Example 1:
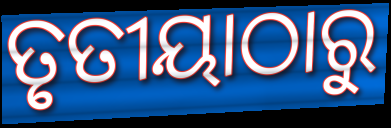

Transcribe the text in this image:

ତୃତୀୟାଠାରୁ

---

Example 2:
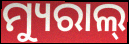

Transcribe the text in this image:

ମ୍ୟୁରାଲ୍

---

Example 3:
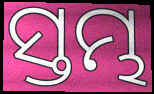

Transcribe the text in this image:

ସ୍ତମ୍ଭ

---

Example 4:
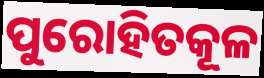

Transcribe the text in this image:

ପୁରୋହିତକୂଳ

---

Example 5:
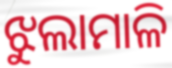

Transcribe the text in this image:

ଝୁଲାମାଳି